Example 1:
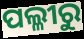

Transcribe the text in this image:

ପଲ୍ଳୀରୁ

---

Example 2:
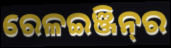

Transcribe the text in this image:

ରେଳଇଞ୍ଜିନ୍‌ର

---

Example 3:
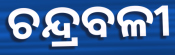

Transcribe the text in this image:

ଚନ୍ଦ୍ରବଳୀ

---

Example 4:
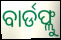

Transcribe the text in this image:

ବାର୍ଡଫ୍ଲୁ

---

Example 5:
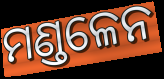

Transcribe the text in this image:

ମଣ୍ଡଳେନ